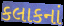
કલાકનાં